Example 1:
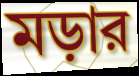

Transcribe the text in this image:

মড়ার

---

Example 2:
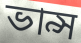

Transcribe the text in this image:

ভান্স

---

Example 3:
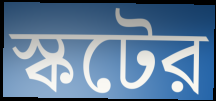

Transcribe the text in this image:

স্কটের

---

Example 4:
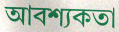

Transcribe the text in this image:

আবশ্যকতা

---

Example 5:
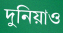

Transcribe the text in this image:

দুনিয়াও